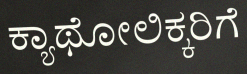
ಕ್ಯಾಥೋಲಿಕ್ಕರಿಗೆ